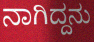
ನಾಗಿದ್ದನು